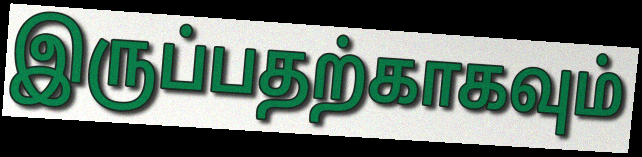
இருப்பதற்காகவும்